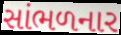
સાંભળનાર